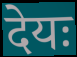
देयः